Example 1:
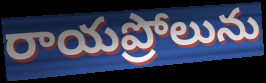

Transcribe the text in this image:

రాయప్రోలును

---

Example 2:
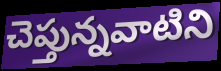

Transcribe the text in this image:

చెప్తున్నవాటిని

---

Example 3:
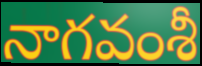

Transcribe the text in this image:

నాగవంశీ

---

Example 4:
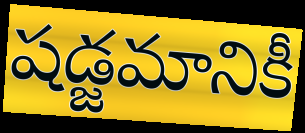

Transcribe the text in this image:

షడ్జమానికీ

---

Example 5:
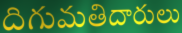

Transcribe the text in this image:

దిగుమతిదారులు